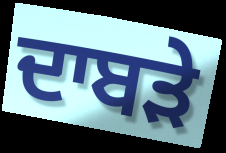
ਦਾਬੜੇ